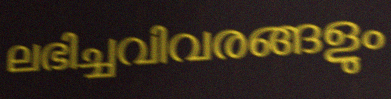
ലഭിച്ചവിവരങ്ങളും